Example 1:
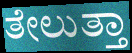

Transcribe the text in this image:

ತೇಲುತ್ತಾ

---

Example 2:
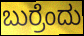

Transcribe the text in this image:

ಬುರ್ರೆಂದು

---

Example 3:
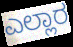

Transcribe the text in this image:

ಎಲ್ಲಾರ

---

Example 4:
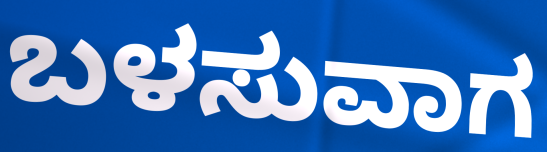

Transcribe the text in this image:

ಬಳಸುವಾಗ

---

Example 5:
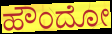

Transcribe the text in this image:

ಹೌಂದೋ